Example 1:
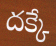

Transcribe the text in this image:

దక్కే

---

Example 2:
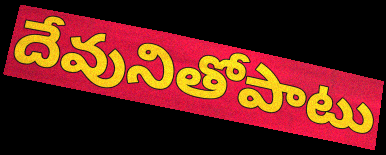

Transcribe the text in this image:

దేవునితోపాటు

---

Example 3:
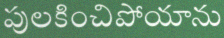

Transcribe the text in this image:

పులకించిపోయాను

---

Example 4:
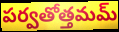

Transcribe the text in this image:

పర్వతోత్తమమ్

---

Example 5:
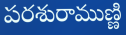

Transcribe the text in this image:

పరశురాముణ్ణి